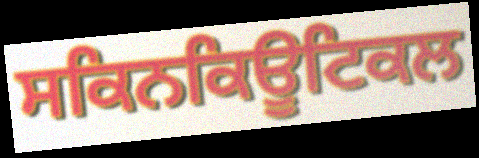
ਸਕਿਨਕਿਊਟਿਕਲ